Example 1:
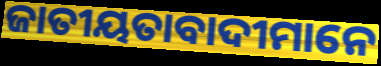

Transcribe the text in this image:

ଜାତୀୟତାବାଦୀମାନେ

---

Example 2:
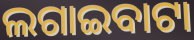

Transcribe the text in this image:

ଲଗାଇବାଟା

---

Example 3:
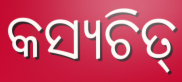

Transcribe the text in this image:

କସ୍ୟଚିତ୍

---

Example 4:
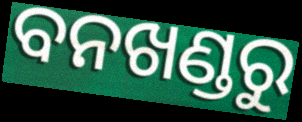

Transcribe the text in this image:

ବନଖଣ୍ଡରୁ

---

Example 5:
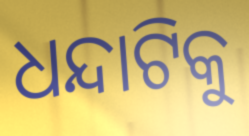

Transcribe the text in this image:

ଧନ୍ଦାଟିକୁ